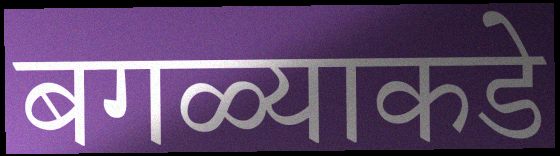
बगळ्याकडे